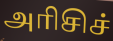
அரிசிச்